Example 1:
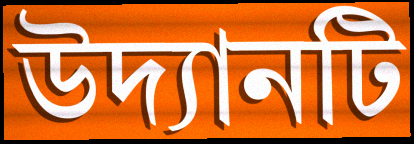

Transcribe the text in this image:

উদ্যানটি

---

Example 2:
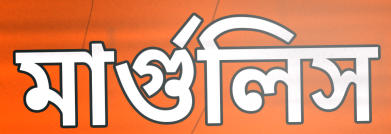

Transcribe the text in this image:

মার্গুলিস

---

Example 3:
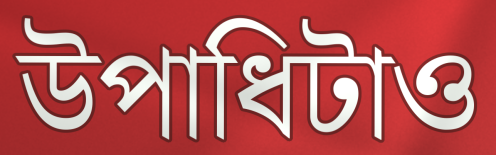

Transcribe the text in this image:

উপাধিটাও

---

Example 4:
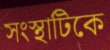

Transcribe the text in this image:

সংস্থাটিকে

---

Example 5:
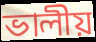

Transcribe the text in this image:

ভালীয়